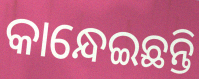
କାନ୍ଧେଇଛନ୍ତି